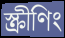
স্ক্ৰীণিং